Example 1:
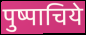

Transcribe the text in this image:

पुष्पाचिये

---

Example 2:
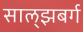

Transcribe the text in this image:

साल्झबर्ग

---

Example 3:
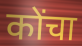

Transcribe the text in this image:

कोंचा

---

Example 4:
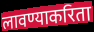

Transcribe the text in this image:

लावण्याकरिता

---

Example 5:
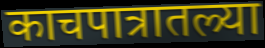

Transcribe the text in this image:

काचपात्रातल्या